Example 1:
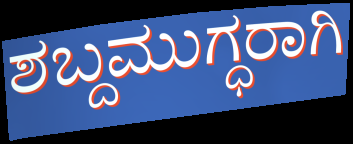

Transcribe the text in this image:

ಶಬ್ದಮುಗ್ಧರಾಗಿ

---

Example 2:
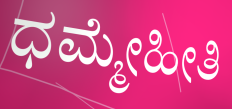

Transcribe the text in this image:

ಧಮ್ಮೇಹೀತಿ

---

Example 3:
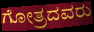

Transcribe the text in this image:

ಗೋತ್ರದವರು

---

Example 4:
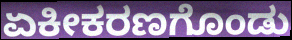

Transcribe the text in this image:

ಏಕೀಕರಣಗೊಂಡು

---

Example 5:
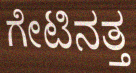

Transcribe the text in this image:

ಗೇಟಿನತ್ತ